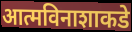
आत्मविनाशाकडे